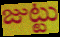
జుట్టు